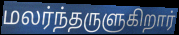
மலர்ந்தருளுகிறார்